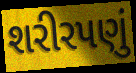
શરીરપણું